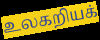
உலகறியக்